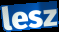
lesz